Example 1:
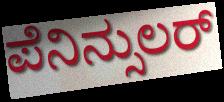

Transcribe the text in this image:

ಪೆನಿನ್ಸುಲರ್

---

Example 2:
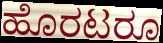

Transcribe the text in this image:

ಹೊರಟರೂ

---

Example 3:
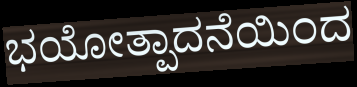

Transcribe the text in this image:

ಭಯೋತ್ಪಾದನೆಯಿಂದ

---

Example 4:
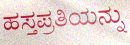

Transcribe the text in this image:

ಹಸ್ತಪ್ರತಿಯನ್ನು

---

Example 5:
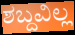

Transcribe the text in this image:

ಶಬ್ದವಿಲ್ಲ